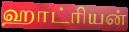
ஹாட்ரியன்